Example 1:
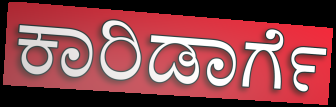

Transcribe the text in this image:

ಕಾರಿಡಾರ್ಗೆ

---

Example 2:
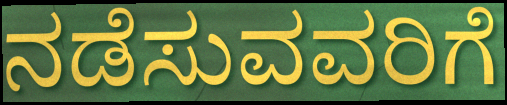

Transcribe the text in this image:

ನಡೆಸುವವರಿಗೆ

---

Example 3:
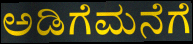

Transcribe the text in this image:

ಅಡಿಗೆಮನೆಗೆ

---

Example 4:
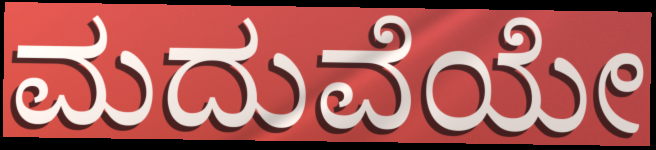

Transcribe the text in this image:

ಮದುವೆಯೇ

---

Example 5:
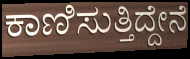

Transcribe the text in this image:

ಕಾಣಿಸುತ್ತಿದ್ದೇನೆ